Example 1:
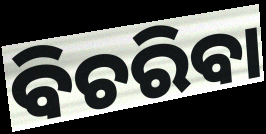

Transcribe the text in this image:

ବିଚରିବା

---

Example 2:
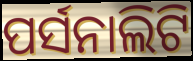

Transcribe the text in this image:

ପର୍ସନାଲିଟି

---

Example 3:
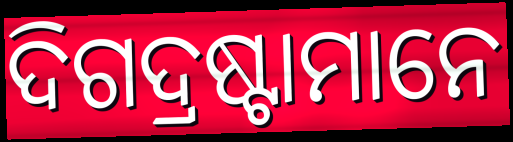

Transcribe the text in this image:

ଦିଗଦ୍ରଷ୍ଟାମାନେ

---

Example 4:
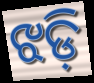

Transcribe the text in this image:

ଝଡ଼ି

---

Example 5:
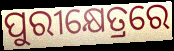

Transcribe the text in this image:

ପୁରୀକ୍ଷେତ୍ରରେ